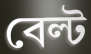
বেল্ট